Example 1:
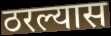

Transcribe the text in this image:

ठरल्यास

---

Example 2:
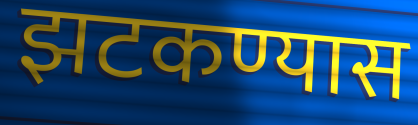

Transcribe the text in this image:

झटकण्यास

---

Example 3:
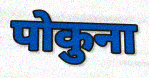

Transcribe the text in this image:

पोकुना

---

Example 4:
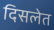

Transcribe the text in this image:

दिसलेत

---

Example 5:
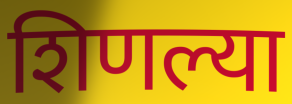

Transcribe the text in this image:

शिणल्या